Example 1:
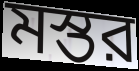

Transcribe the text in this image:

মস্তর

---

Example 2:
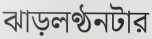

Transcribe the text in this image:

ঝাড়লণ্ঠনটার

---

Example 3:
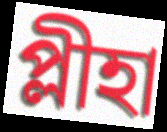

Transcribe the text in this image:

প্লীহা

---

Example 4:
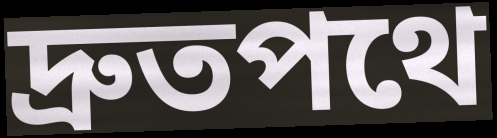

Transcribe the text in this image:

দ্রুতপথে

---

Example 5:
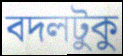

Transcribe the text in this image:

বদলটুকু